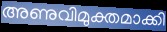
അണുവിമുക്തമാക്കി